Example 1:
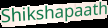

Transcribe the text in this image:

Shikshapaath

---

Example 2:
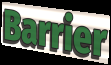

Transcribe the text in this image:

Barrier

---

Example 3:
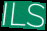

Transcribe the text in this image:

ILS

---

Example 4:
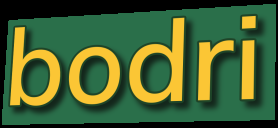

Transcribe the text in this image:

bodri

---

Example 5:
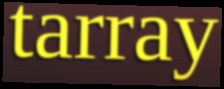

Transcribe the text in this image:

tarray